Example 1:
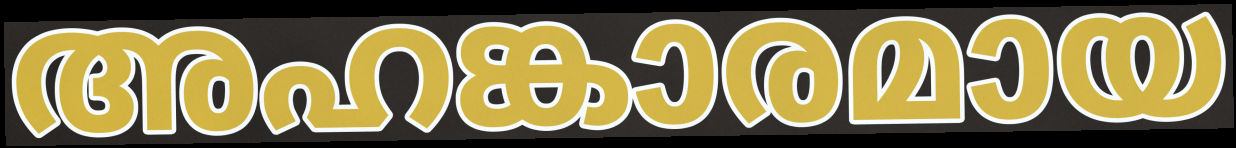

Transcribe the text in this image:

അഹങ്കാരമായ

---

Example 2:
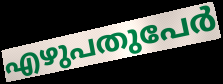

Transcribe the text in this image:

എഴുപതുപേർ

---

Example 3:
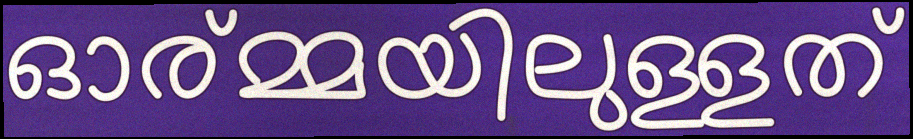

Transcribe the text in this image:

ഓര്മ്മയിലുള്ളത്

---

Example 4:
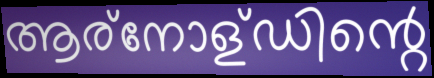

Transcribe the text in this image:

ആര്നോള്ഡിന്റെ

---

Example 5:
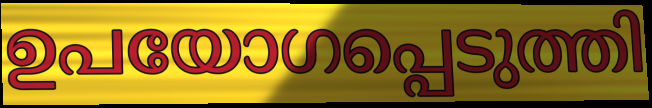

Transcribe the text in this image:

ഉപയോഗപ്പെടുത്തി